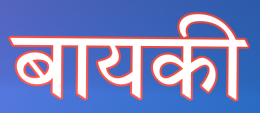
बायकी